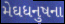
મેઘધનુષના